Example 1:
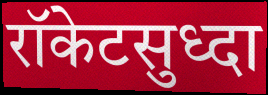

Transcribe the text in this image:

रॉकेटसुध्दा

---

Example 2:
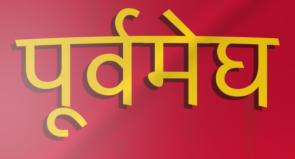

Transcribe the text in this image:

पूर्वमेघ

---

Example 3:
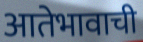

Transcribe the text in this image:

आतेभावाची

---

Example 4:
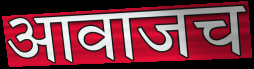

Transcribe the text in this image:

आवाजच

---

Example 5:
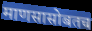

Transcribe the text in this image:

माणसासोबतच